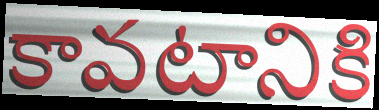
కావటానికి